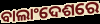
ବାଲାଂଦେଶରେ